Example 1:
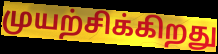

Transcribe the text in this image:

முயற்சிக்கிறது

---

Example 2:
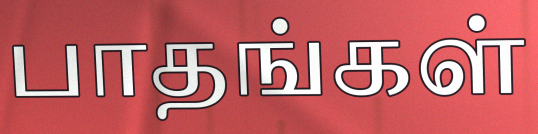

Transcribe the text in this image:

பாதங்கள்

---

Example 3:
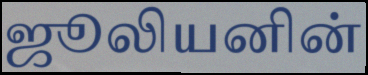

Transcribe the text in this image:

ஜூலியனின்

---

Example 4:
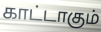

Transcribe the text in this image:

காட்டாகும்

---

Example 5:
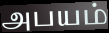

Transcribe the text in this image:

அபயம்